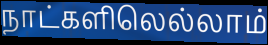
நாட்களிலெல்லாம்